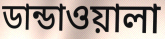
ডান্ডাওয়ালা